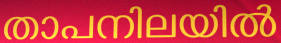
താപനിലയിൽ